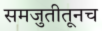
समजुतीतूनच